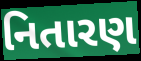
નિતારણ